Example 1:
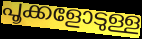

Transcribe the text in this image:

പൂക്കളോടുള്ള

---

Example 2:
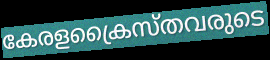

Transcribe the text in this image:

കേരളക്രൈസ്തവരുടെ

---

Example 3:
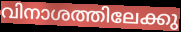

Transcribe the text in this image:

വിനാശത്തിലേക്കു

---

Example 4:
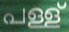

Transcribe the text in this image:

പള്ള്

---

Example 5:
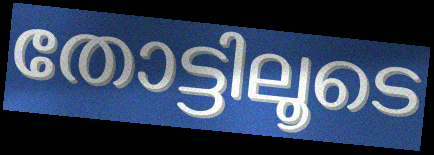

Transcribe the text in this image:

തോട്ടിലൂടെ